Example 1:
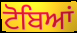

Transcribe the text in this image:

ਟੋਬਿਆਂ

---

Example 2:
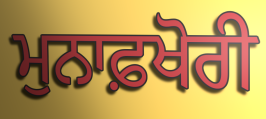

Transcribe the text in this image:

ਮੁਨਾਫ਼ਖੋਰੀ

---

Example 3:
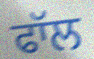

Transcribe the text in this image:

ਫਾੱਲ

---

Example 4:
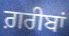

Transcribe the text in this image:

ਗ਼ਰੀਬਾਂ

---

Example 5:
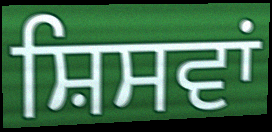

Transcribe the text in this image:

ਸ਼ਿਸਵਾਂ